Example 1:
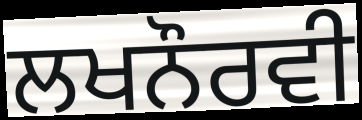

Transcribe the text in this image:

ਲਖਨੌਰਵੀ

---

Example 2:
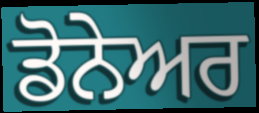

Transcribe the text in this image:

ਡੋਨੇਅਰ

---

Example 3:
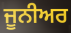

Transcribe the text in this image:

ਜੂਨੀਅਰ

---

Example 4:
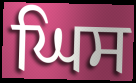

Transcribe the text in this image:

ਘਿਸ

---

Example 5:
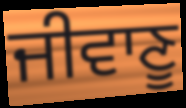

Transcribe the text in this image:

ਜੀਵਾਣੂ